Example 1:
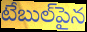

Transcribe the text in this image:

టేబుల్‌పైన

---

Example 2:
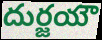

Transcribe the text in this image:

దుర్జయౌ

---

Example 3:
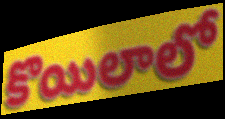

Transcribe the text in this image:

కొయిలాలో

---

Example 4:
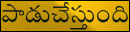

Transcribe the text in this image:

పాడుచేస్తుంది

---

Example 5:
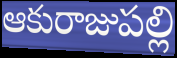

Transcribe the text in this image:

ఆకురాజుపల్లి